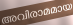
അവിരാമമായ